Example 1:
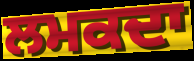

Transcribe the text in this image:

ਲਮਕਦਾ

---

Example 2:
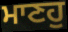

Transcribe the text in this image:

ਮਾਣਹੁ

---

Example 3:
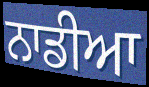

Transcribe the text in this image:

ਨਾਡੀਆ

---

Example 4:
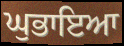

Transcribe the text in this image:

ਘੁਭਾਇਆ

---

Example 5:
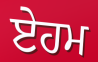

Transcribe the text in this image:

ਏਹਮ